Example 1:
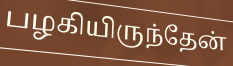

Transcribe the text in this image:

பழகியிருந்தேன்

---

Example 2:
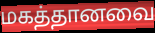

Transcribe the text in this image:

மகத்தானவை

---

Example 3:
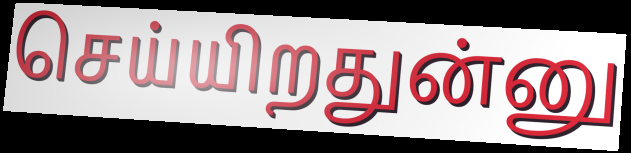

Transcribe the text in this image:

செய்யிறதுன்னு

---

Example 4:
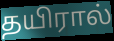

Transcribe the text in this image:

தயிரால்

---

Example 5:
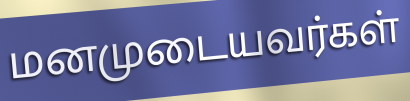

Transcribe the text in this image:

மனமுடையவர்கள்